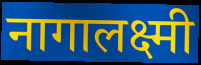
नागालक्ष्मी